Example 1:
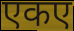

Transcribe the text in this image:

एकए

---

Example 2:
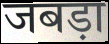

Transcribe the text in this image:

जबड़ा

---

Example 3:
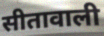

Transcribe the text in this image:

सीतावाली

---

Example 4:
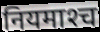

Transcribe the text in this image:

नियमाश्च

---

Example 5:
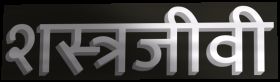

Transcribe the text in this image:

शस्त्रजीवी